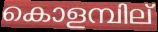
കൊളമ്പില്